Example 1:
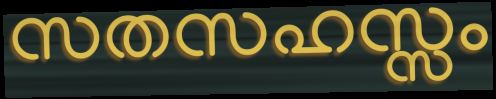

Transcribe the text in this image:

സതസഹസ്സം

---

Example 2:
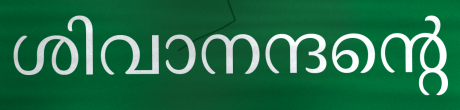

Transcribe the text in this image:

ശിവാനന്ദന്റെ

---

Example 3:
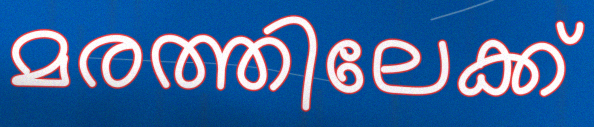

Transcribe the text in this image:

മരത്തിലേക്ക്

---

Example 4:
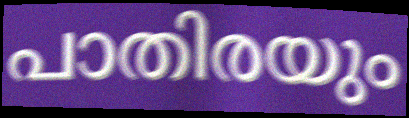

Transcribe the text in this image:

പാതിരയും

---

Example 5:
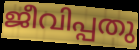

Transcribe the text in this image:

ജീവിപ്പതു